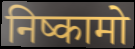
निष्कामो